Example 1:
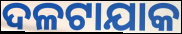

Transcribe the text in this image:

ଦଳଟାଯାକ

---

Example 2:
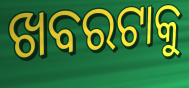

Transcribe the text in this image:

ଖବରଟାକୁ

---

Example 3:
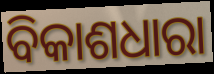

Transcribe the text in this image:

ବିକାଶଧାରା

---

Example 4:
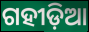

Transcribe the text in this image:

ଗହୀଡ଼ିଆ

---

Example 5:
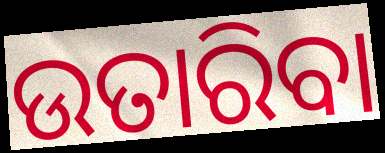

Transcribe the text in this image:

ଉତାରିବା